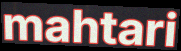
mahtari